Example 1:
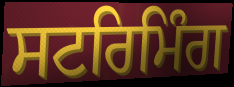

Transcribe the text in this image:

ਸਟਰਿਮਿੰਗ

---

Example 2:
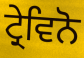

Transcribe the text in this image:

ਟ੍ਰੇਵਿਨੋ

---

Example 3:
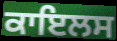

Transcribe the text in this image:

ਕਾਇਲਸ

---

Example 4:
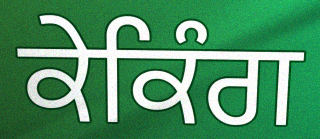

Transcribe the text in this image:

ਕੇਕਿੰਗ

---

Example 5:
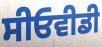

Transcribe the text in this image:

ਸੀਓਵੀਡੀ